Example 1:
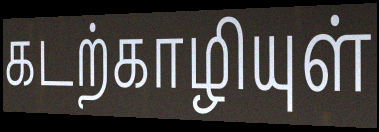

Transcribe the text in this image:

கடற்காழியுள்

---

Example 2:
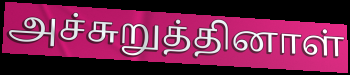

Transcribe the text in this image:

அச்சுறுத்தினாள்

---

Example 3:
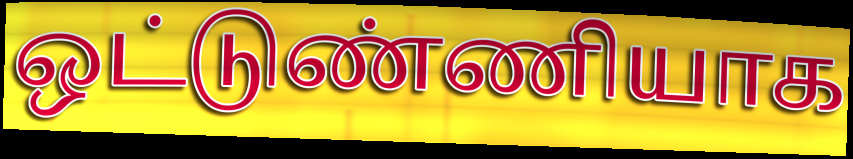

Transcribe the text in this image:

ஒட்டுண்ணியாக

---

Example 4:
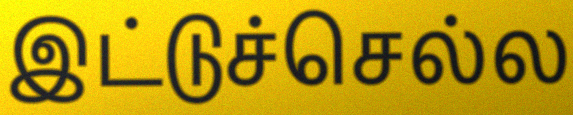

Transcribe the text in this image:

இட்டுச்செல்ல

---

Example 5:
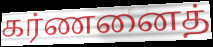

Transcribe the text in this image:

கர்ணனைத்